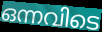
ഒന്നവിടെ